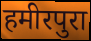
हमीरपुरा